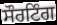
ਸੌਰਟਿੰਗ